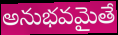
అనుభవమైతే